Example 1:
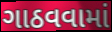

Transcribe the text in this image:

ગાઠવવામાં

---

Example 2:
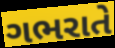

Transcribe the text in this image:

ગભરાતે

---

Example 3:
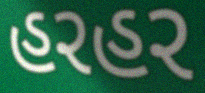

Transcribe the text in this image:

હરહર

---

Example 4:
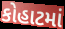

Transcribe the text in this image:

કોહાટમાં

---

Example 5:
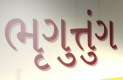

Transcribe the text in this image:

ભૃગુત્તુંગ